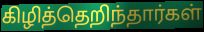
கிழித்தெறிந்தார்கள்